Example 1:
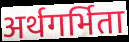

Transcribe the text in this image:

अर्थगर्भिता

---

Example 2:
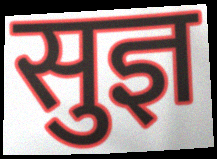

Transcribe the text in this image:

सुज्ञ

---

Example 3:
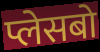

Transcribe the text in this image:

प्लेसबो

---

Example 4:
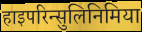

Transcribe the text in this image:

हाइपरिन्सुलिनिमिया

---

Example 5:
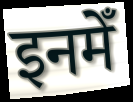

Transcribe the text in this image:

इनमेँ